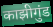
काझीगुंड